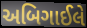
અબિગાઈલે